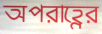
অপরাহ্ণের